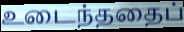
உடைந்ததைப்